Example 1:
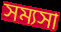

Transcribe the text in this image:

সম্যসা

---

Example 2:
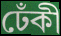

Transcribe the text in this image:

ঢেঁকী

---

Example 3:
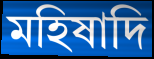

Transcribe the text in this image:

মহিষাদি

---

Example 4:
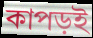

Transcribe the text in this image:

কাপড়ই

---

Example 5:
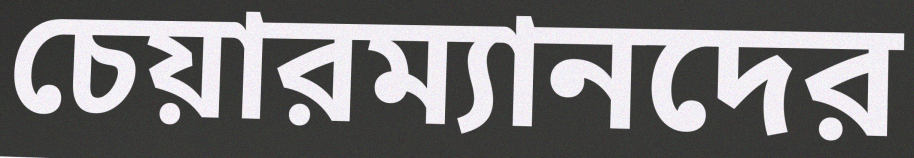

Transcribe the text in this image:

চেয়ারম্যানদের